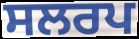
ਸਲਰਪ